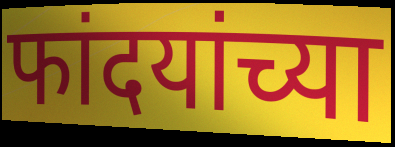
फांदयांच्या